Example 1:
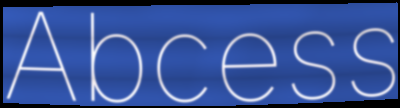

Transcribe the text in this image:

Abcess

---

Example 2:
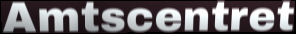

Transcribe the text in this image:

Amtscentret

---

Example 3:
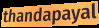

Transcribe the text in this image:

thandapayal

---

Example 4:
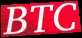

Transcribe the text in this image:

BTC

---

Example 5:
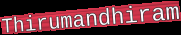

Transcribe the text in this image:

Thirumandhiram